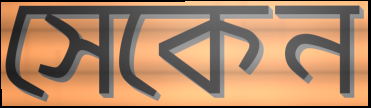
সেকেন